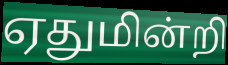
ஏதுமின்றி